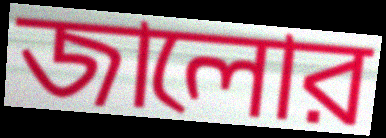
জালোর